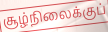
சூழ்நிலைக்குப்